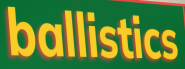
ballistics